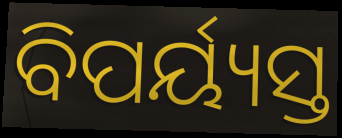
ବିପର୍ୟ୍ୟସ୍ତ